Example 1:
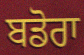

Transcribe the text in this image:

ਬਡੋਰਾ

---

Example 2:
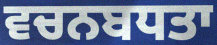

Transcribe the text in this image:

ਵਚਨਬਧਤਾ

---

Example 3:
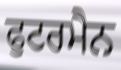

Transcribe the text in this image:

ਫੁਟਰਮੈਨ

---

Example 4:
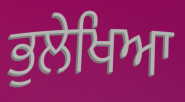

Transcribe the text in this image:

ਭੁਲੇਖਿਆ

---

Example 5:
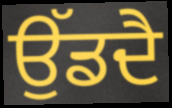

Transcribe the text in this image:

ਉੱਡਦੈ